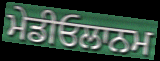
ਮੇਡੀਓਲਾਨਮ